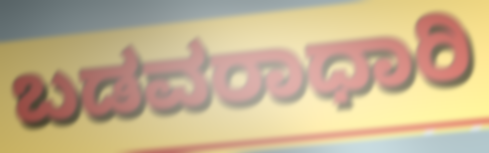
ಬಡವರಾಧಾರಿ